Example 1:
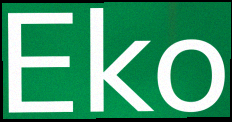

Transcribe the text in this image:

Eko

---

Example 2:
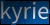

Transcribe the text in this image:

kyrie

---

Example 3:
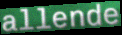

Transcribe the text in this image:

allende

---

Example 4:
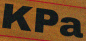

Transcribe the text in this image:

KPa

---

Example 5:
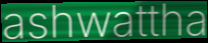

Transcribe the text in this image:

ashwattha